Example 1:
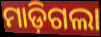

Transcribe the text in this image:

ମାଡ଼ିଗଲା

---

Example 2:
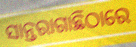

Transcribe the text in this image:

ସାନ୍ତରାଗାଛିଠାରେ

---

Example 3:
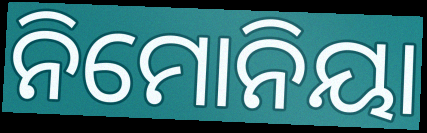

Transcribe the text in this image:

ନିମୋନିୟା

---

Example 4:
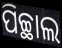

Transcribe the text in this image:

ପିଚ୍ଛାଲ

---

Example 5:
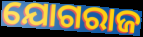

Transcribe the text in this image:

ଯୋଗରାଜ